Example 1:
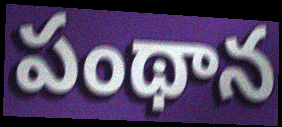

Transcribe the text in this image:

పంథాన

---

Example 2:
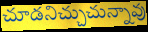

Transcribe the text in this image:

చూడనిచ్చుచున్నావు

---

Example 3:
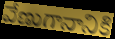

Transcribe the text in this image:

వేణుగానానికి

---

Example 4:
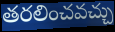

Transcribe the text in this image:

తరలించవచ్చు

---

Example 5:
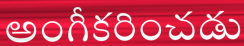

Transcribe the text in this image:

అంగీకరించడు